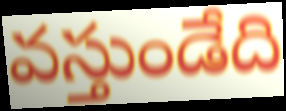
వస్తుండేది